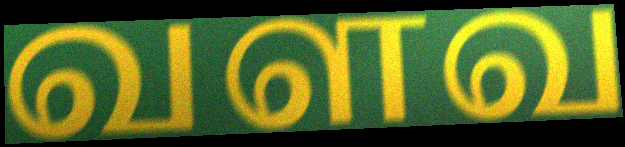
வளவ